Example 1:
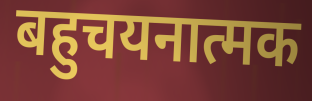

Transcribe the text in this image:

बहुचयनात्मक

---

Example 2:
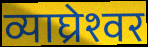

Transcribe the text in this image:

व्याघ्रेश्वर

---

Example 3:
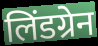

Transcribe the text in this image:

लिंडग्रेन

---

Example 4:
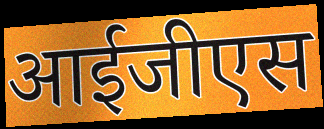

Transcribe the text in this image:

आईजीएस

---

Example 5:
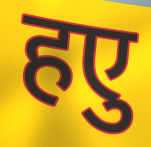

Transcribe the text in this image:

हएु